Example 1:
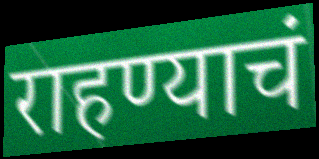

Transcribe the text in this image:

राहण्याचं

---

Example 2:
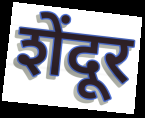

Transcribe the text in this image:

शेंदूर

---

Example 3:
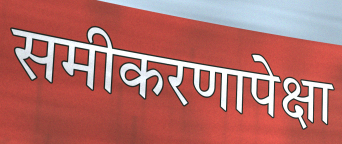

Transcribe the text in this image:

समीकरणापेक्षा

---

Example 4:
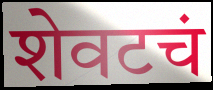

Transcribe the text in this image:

शेवटचं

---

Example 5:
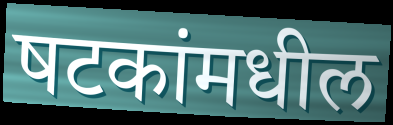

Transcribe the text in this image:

षटकांमधील